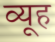
व्यूह